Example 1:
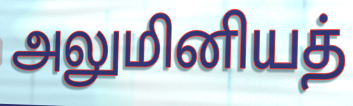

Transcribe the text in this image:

அலுமினியத்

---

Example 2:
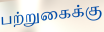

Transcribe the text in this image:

பற்றுகைக்கு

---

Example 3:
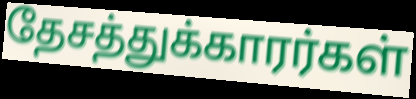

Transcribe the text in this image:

தேசத்துக்காரர்கள்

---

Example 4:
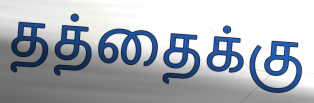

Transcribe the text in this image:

தத்தைக்கு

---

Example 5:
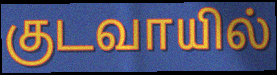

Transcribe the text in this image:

குடவாயில்